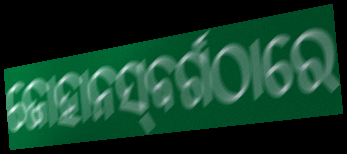
ଜୋହାନସ୍‌ବର୍ଗଠାରେ